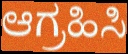
ಆಗ್ರಹಿಸಿ